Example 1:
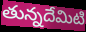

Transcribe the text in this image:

తున్నదేమిటి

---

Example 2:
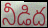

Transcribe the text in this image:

నీడిద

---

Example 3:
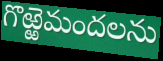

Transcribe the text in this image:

గొఱ్ఱెమందలను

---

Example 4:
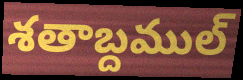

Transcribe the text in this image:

శతాబ్దముల్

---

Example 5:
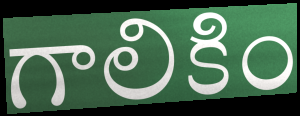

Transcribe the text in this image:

గాలికిం